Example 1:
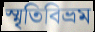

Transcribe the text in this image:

স্মৃতিবিভ্রম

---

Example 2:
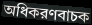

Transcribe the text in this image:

অধিকরণবাচক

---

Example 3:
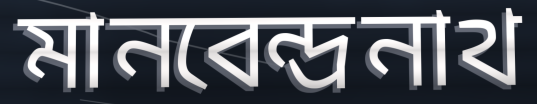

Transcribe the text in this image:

মানবেন্দ্রনাথ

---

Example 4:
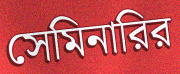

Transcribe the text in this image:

সেমিনারির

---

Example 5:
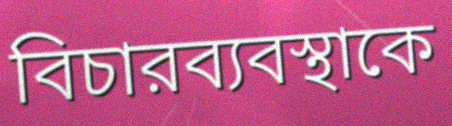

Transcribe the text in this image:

বিচারব্যবস্থাকে